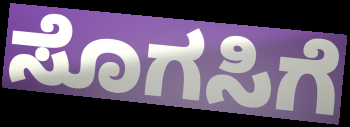
ಸೊಗಸಿಗೆ